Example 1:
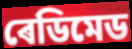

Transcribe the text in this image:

ৰেডিমেড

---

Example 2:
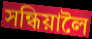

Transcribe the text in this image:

সন্ধিয়ালৈ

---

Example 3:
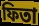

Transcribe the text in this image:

ফিতা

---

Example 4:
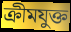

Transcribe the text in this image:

ক্ৰীমযুক্ত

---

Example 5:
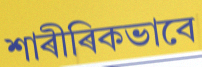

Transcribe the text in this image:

শাৰীৰিকভাবে